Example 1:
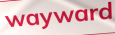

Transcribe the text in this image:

wayward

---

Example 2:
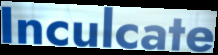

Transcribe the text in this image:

Inculcate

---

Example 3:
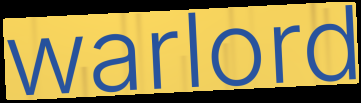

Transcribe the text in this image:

warlord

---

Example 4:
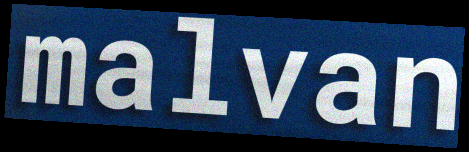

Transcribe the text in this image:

malvan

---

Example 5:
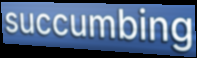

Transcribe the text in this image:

succumbing